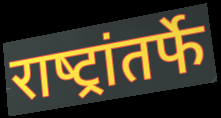
राष्ट्रांतर्फे